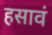
हसावं